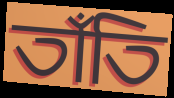
তাঁতি